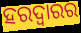
ହରଦ୍ୱାରର